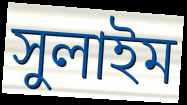
সুলাইম